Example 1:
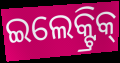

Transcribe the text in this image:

ଇଲେକ୍ଟ୍ରିକ୍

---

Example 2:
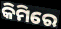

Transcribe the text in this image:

କିମିରେ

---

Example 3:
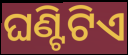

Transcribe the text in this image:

ଘଣ୍ଟିଟିଏ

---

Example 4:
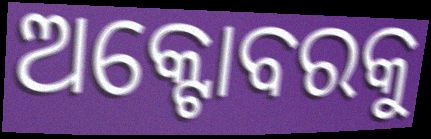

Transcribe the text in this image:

ଅକ୍ଟୋବରକୁ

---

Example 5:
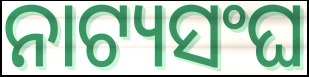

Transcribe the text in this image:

ନାଟ୍ୟସଂଘ